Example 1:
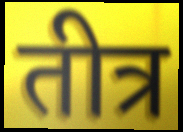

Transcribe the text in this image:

तीत्र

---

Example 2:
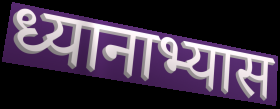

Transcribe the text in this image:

ध्यानाभ्यास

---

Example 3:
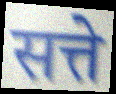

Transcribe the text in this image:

सत्ते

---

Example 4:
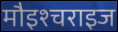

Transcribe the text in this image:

मौइश्चराइज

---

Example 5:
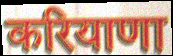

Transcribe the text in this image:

करियाणा